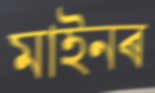
মাইনৰ